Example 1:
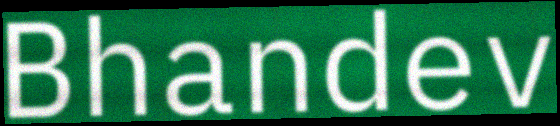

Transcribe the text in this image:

Bhandev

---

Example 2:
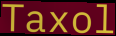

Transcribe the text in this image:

Taxol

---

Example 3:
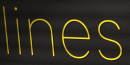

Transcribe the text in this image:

lines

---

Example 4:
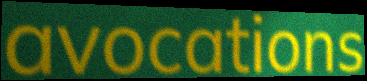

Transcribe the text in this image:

avocations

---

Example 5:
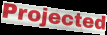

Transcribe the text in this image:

Projected